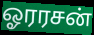
ஓரரசன்